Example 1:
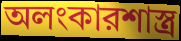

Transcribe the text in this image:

অলংকারশাস্ত্র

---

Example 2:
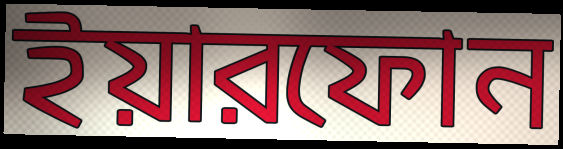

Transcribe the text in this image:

ইয়ারফোন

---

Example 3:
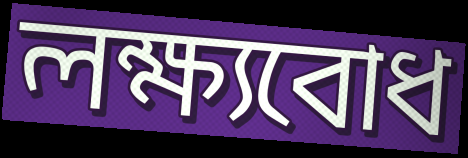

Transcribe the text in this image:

লক্ষ্যবোধ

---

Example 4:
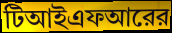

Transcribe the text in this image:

টিআইএফআরের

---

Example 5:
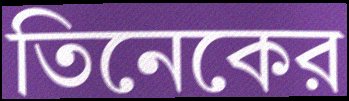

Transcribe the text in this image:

তিনেকের